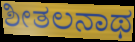
ಶೀತಲನಾಥ